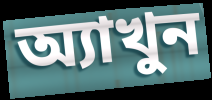
অ্যাখুন